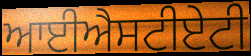
ਆਈਐਸਟੀਏਟੀ